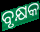
ବୃକ୍ଷକ